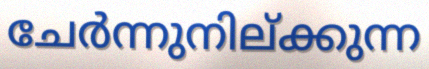
ചേർന്നുനില്ക്കുന്ന